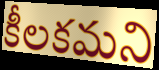
కీలకమని